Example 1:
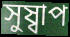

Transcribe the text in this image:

সুষ্বাপ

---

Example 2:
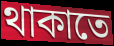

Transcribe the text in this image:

থাকাতে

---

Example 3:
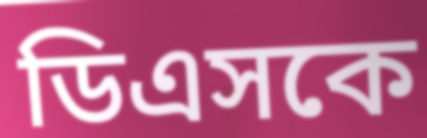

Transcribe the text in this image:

ডিএসকে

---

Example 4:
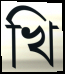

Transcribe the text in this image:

খি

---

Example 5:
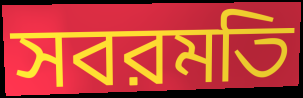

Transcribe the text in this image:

সবরমতি